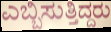
ಎಬ್ಬಿಸುತ್ತಿದ್ದರು